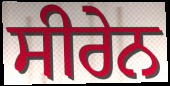
ਸੀਰੇਨ